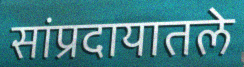
सांप्रदायातले